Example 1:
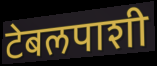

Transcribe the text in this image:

टेबलपाशी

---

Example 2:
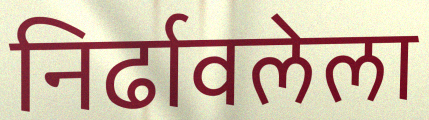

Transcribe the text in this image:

निर्ढावलेला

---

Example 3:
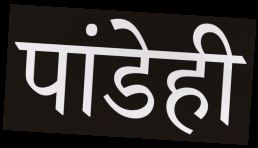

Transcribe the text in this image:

पांडेही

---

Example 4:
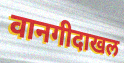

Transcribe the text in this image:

वानगीदाखल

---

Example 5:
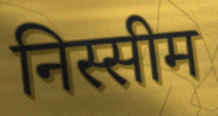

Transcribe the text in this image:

निस्सीम